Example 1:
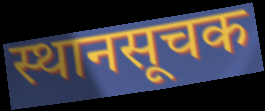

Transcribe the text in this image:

स्थानसूचक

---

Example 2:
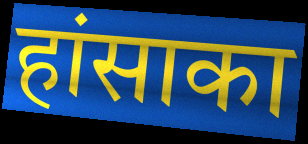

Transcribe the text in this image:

हांसाका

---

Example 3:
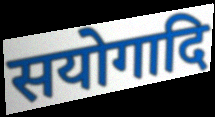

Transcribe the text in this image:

सयोगादि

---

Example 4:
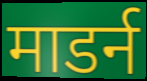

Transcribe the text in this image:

माडर्न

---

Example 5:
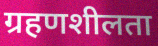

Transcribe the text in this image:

ग्रहणशीलता